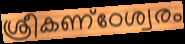
ശ്രീകണ്‌ഠേശ്വരം